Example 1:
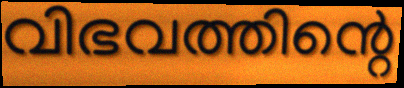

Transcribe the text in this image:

വിഭവത്തിന്റെ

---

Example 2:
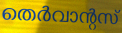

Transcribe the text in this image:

തെർവാന്റസ്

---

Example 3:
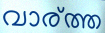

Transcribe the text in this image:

വാര്ത്ത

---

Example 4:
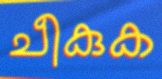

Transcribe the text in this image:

ചീകുക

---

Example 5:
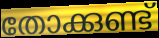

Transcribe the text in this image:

തോക്കുണ്ട്